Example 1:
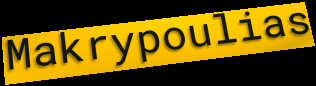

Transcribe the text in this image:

Makrypoulias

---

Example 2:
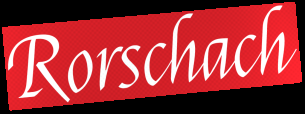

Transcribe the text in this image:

Rorschach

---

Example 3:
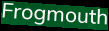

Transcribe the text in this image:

Frogmouth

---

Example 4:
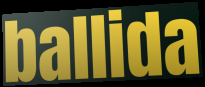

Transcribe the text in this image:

ballida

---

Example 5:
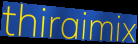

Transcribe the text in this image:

thiraimix